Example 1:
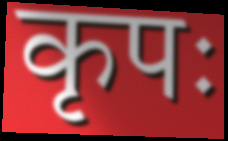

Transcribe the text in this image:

कृपः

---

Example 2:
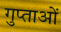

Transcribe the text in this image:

गुप्ताओं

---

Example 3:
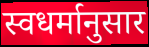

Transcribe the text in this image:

स्वधर्मानुसार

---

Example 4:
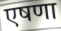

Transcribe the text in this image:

एषणा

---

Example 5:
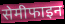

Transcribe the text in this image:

सेमीफाइन